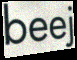
beej